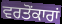
ਵਰਤੋਂਕਾਰਾਂ